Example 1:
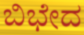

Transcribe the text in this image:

ಬಿಭೇದ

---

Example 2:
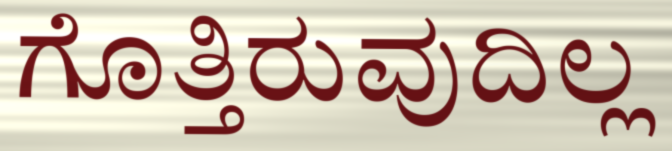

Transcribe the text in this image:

ಗೊತ್ತಿರುವುದಿಲ್ಲ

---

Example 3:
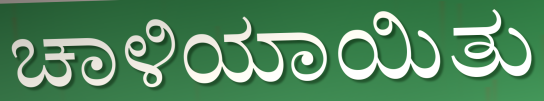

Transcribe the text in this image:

ಚಾಳಿಯಾಯಿತು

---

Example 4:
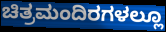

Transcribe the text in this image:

ಚಿತ್ರಮಂದಿರಗಳಲ್ಲೂ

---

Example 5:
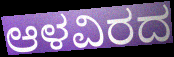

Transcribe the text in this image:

ಆಳವಿರದ